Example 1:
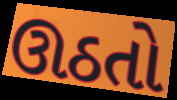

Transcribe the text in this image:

ઊઠતો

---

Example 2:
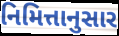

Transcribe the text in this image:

નિમિત્તાનુસાર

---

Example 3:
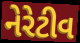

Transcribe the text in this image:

નેરેટીવ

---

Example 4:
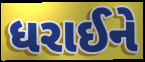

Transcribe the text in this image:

ધરાઈને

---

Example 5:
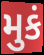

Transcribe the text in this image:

મુકં